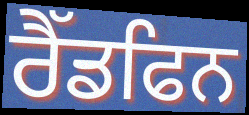
ਰੈੱਡਫਿਨ